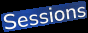
Sessions